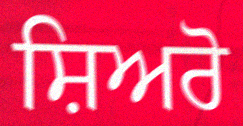
ਸ਼ਿਅਰੋ